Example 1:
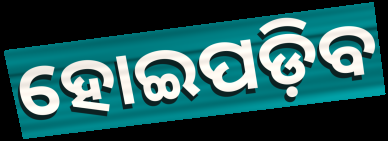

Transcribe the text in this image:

ହୋଇପଡ଼ିବ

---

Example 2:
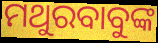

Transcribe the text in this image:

ମଥୁରବାବୁଙ୍କ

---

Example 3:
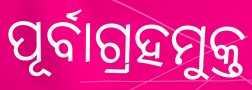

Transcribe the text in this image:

ପୂର୍ବାଗ୍ରହମୁକ୍ତ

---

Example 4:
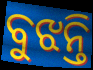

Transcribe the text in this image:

ବୁଝନ୍ତି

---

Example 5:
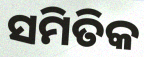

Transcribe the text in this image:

ସମିତିକ